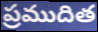
ప్రముదిత